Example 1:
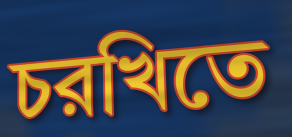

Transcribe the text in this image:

চরখিতে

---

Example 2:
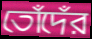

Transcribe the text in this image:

তোঁদেঁর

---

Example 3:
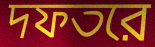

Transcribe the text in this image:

দফতরে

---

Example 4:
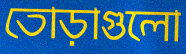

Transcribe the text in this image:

তোড়াগুলো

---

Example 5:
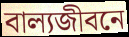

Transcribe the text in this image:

বাল্যজীবনে